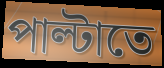
পাল্টাতে